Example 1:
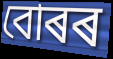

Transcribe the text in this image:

বোৰৰ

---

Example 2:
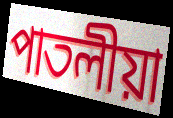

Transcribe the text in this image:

পাতলীয়া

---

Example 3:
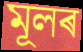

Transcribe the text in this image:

মূলৰ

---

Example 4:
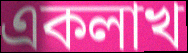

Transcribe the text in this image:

একলাখ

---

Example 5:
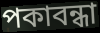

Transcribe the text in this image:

পকাবন্ধা